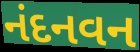
નંદનવન